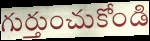
గుర్తుంచుకోండి